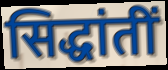
सिद्धांतीं